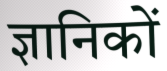
ज्ञानिकों